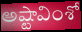
అష్టావింశో